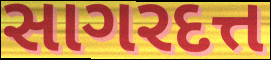
સાગરદત્ત